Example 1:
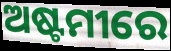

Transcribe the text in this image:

ଅଷ୍ଟମୀରେ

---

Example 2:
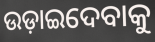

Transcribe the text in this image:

ଉଡ଼ାଇଦେବାକୁ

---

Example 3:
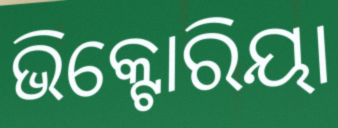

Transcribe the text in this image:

ଭିକ୍ଟୋରିୟା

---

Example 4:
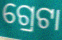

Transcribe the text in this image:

ଗ୍ରେଟା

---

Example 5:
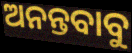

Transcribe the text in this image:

ଅନନ୍ତବାବୁ